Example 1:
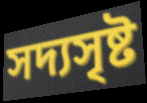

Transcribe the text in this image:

সদ্যসৃষ্ট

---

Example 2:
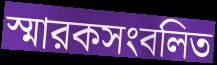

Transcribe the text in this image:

স্মারকসংবলিত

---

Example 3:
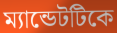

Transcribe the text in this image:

ম্যান্ডেটটিকে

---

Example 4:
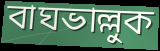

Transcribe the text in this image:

বাঘভাল্লুক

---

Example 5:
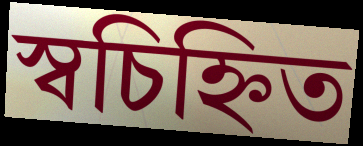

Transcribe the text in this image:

স্বচিহ্নিত